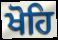
ਖੋਹਿ